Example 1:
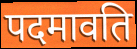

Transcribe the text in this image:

पदमावति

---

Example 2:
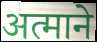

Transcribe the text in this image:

अत्माने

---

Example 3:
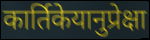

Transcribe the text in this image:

कार्तिकेयानुप्रेक्षा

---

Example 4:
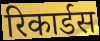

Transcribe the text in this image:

रिकार्डस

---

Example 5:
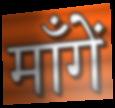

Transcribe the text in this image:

माँगें